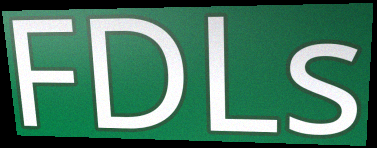
FDLs